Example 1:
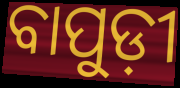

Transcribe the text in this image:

ବାପୁଡ଼ୀ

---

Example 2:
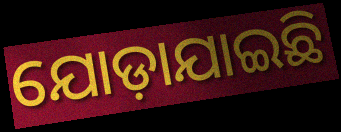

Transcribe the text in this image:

ଯୋଡ଼ାଯାଇଛି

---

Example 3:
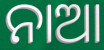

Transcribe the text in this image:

ନାଆ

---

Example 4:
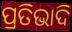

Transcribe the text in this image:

ପ୍ରତିଭାଦି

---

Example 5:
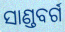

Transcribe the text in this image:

ସାଣ୍ଡବର୍ଗ